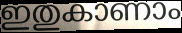
ഇതുകാണാം